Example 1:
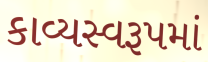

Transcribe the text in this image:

કાવ્યસ્વરૂપમાં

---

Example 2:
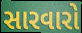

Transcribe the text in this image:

સારવારો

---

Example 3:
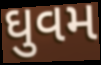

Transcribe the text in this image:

ઘુવમ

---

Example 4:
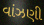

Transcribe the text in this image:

વાંઝણી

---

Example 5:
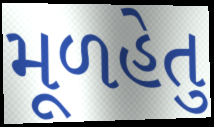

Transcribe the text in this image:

મૂળહેતુ